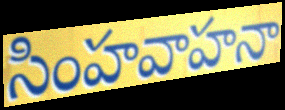
సింహవాహనా